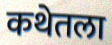
कथेतला